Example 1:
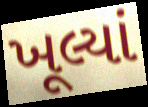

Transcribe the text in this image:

ખૂલ્યાં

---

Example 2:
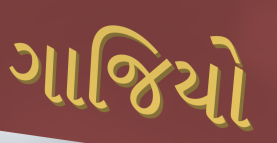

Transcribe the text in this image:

ગાજિયો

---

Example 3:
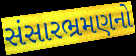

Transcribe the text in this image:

સંસારભ્રમણનો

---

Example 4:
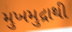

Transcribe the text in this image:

મુખમુદ્રાથી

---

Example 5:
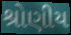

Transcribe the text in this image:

શ્રોણીય